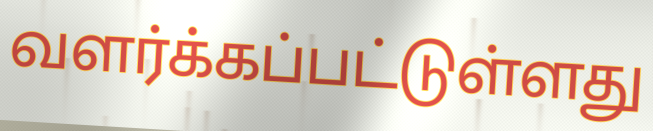
வளர்க்கப்பட்டுள்ளது